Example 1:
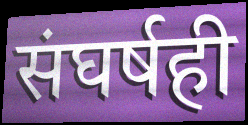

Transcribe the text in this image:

संघर्षही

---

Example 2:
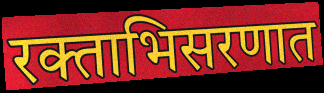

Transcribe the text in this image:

रक्ताभिसरणात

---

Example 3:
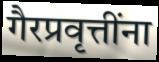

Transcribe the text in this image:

गैरप्रवृत्तींना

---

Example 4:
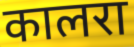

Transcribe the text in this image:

कालरा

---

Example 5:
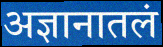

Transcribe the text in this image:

अज्ञानातलं